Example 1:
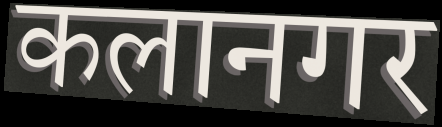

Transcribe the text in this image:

कलानगर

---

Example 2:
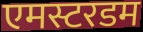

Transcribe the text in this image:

एमस्टरडम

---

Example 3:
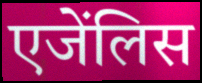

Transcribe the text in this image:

एजेंलिस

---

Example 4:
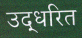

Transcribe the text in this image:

उद्धरित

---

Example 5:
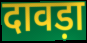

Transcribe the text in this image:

दावड़ा